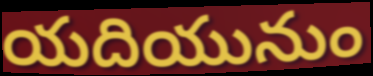
యదియునుం